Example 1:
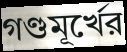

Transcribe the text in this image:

গণ্ডমূর্খের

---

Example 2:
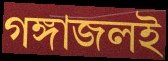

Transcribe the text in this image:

গঙ্গাজলই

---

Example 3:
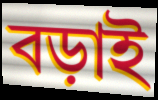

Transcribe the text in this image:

বড়াই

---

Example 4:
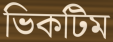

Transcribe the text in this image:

ভিকটিম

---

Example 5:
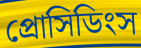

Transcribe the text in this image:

প্রোসিডিংস